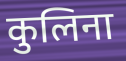
कुलिना